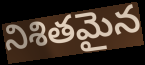
నిశితమైన